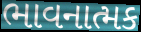
ભાવનાત્મક